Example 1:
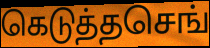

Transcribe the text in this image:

கெடுத்தசெங்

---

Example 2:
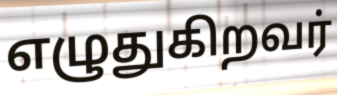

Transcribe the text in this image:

எழுதுகிறவர்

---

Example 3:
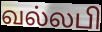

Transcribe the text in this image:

வல்லபி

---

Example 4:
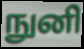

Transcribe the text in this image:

நுனி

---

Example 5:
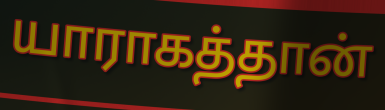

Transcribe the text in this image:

யாராகத்தான்